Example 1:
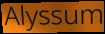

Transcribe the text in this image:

Alyssum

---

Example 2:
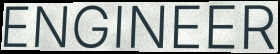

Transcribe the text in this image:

ENGINEER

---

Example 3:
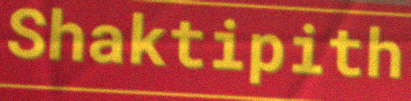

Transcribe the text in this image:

Shaktipith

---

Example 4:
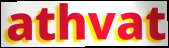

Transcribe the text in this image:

athvat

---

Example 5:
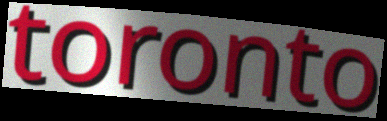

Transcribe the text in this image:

toronto